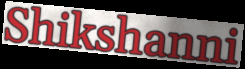
Shikshanni